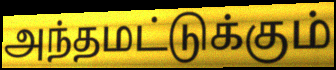
அந்தமட்டுக்கும்